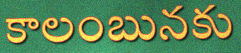
కాలంబునకు